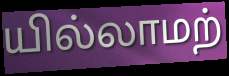
யில்லாமற்